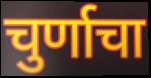
चुर्णाचा